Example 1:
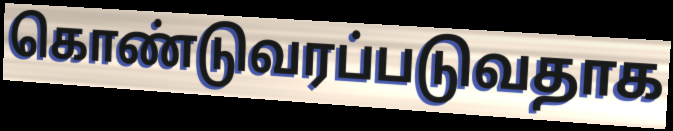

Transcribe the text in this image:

கொண்டுவரப்படுவதாக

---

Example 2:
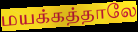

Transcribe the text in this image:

மயக்கத்தாலே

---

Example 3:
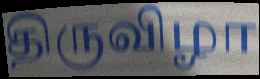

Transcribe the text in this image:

திருவிழா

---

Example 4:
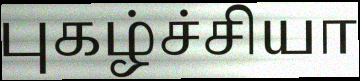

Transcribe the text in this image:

புகழ்ச்சியா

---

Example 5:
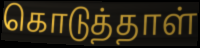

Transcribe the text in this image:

கொடுத்தாள்